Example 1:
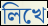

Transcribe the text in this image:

লিখে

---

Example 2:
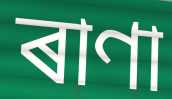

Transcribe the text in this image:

ৰাণা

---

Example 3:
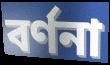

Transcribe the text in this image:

বৰ্ণনা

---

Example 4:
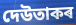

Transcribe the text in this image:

দেউতাকৰ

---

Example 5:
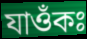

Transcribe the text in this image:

যাওঁকঃ